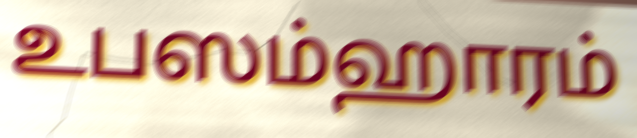
உபஸம்ஹாரம்